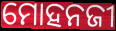
ମୋହନଜୀ